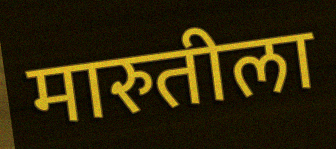
मारुतीला